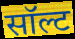
सॉल्ट